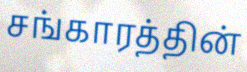
சங்காரத்தின்